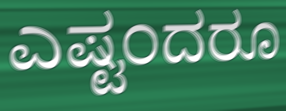
ಎಷ್ಟಂದರೂ